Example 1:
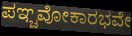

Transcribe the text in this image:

ಪಞ್ಚವೋಕಾರಭವೇ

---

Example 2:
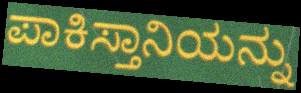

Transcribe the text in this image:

ಪಾಕಿಸ್ತಾನಿಯನ್ನು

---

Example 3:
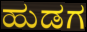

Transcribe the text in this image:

ಹುಡಗ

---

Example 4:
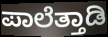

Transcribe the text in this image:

ಪಾಲೆತ್ತಾಡಿ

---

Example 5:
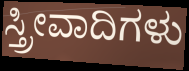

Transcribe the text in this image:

ಸ್ತ್ರೀವಾದಿಗಳು